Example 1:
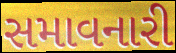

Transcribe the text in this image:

સમાવનારી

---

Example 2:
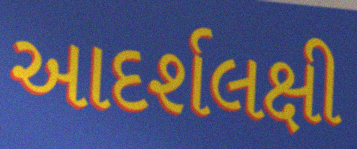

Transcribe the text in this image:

આદર્શલક્ષી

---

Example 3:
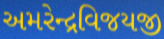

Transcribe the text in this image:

અમરેન્દ્રવિજયજી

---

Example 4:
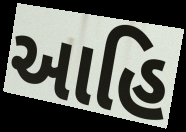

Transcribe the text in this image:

આહિ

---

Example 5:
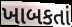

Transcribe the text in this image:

ખાબકતાં